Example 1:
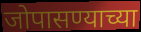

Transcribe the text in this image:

जोपासण्याच्या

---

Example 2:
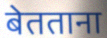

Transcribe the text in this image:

बेतताना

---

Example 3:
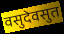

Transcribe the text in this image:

वसुदेवसुत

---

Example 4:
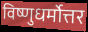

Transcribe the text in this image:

विष्णुधर्मोत्तर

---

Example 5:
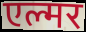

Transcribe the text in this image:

एल्मर